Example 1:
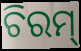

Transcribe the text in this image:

ଚିରମ୍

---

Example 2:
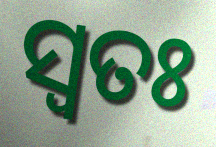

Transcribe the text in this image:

ସ୍ଵତଃ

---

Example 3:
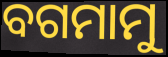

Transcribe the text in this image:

ବଗମାମୁ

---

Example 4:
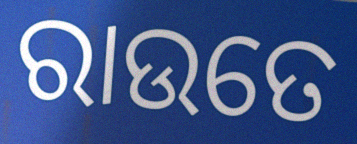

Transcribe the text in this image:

ରାଉତେ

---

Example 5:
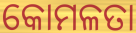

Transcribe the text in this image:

କୋମଳତା